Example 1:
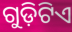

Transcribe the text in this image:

ଗୁଡ଼ିଟିଏ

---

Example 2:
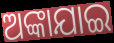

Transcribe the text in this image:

ଅଙ୍କାଯାଇ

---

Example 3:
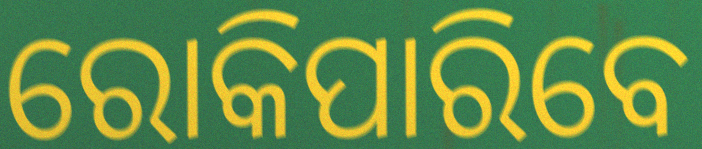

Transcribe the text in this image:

ରୋକିପାରିବେ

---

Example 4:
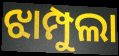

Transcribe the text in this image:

ଝାମ୍ପୁଲା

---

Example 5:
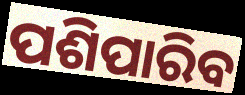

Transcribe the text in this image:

ପଶିପାରିବ